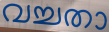
വച്ചതാ